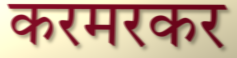
करमरकर